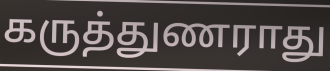
கருத்துணராது